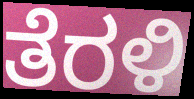
ತೆರಳಿ